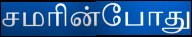
சமரின்போது